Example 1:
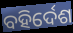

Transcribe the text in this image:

ବହିର୍ଦେଶ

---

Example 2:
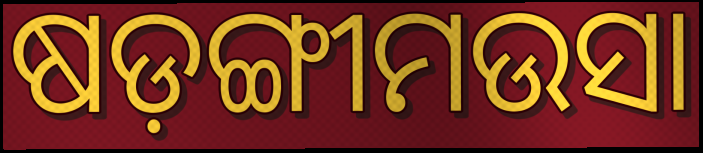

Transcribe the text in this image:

ଷଡ଼ଙ୍ଗୀମଉସା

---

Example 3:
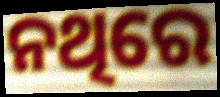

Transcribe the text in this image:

ନଥିରେ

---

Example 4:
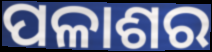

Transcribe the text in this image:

ପଳାଶର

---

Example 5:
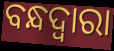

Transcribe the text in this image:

ବନ୍ଧଦ୍ବାରା